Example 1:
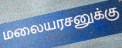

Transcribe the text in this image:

மலையரசனுக்கு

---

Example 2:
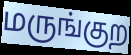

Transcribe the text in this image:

மருங்குற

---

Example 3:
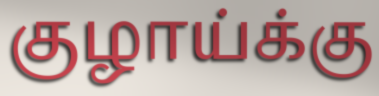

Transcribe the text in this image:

குழாய்க்கு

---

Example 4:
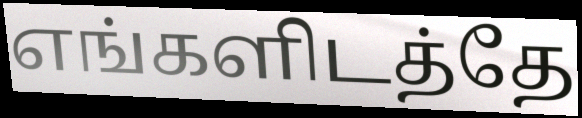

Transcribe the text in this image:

எங்களிடத்தே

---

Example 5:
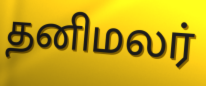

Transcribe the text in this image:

தனிமலர்